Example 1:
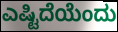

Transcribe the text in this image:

ಎಷ್ಟಿದೆಯೆಂದು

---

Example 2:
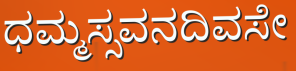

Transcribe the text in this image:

ಧಮ್ಮಸ್ಸವನದಿವಸೇ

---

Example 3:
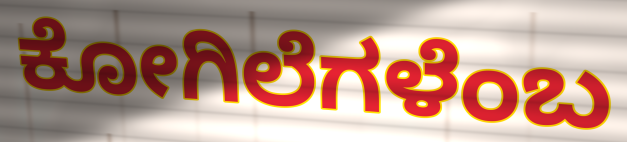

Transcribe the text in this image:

ಕೋಗಿಲೆಗಳೆಂಬ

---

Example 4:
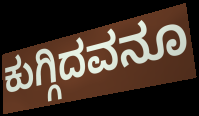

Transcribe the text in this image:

ಕುಗ್ಗಿದವನೂ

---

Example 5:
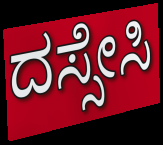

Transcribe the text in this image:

ದಸ್ಸೇಸಿ